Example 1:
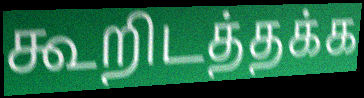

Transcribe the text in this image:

கூறிடத்தக்க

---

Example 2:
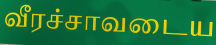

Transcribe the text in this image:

வீரச்சாவடைய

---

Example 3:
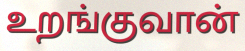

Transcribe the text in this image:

உறங்குவான்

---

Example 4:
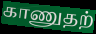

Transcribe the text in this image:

காணுதற்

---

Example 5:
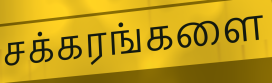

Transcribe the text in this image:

சக்கரங்களை